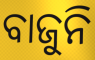
ବାଜୁନି